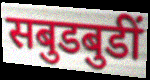
सबुडबुडीं